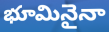
భూమినైనా